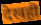
देखही